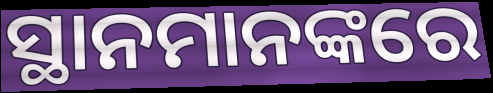
ସ୍ଥାନମାନଙ୍କରେ